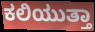
ಕಲಿಯುತ್ತಾ